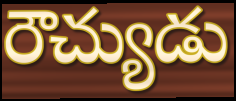
రౌచ్యుడు